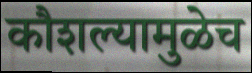
कौशल्यामुळेच